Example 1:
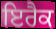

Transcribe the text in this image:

ਇਰੈਕ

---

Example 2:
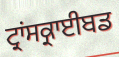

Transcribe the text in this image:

ਟ੍ਰਾਂਸਕ੍ਰਾਈਬਡ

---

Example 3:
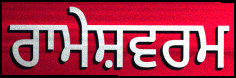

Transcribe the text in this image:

ਰਾਮੇਸ਼ਵਰਮ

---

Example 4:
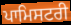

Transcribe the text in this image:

ਪਾਮਿਸਟਰੀ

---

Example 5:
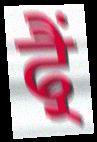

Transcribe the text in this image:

ਫ੍ਰੈਂ